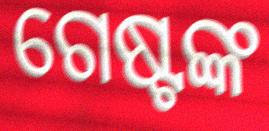
ଗେଷ୍ଟଙ୍କ